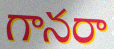
గానరా